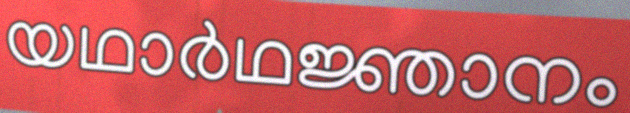
യഥാർഥജ്ഞാനം